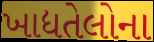
ખાદ્યતેલોના